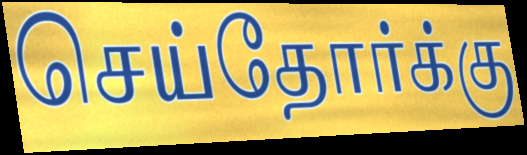
செய்தோர்க்கு